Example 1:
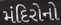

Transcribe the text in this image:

મંદિરોનો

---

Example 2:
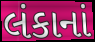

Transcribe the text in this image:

લંકાનાં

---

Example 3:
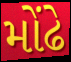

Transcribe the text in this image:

મોંઢે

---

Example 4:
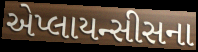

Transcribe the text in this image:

એપ્લાયન્સીસના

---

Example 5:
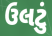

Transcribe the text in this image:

ઉલટું